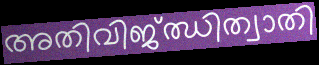
അതിവിജ്ഝിത്വാതി